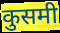
कुसमी